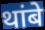
थांबे